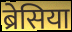
ब्रेसिया